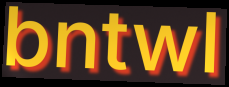
bntwl